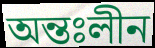
অন্তঃলীন